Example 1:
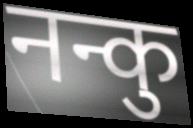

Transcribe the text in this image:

नन्कु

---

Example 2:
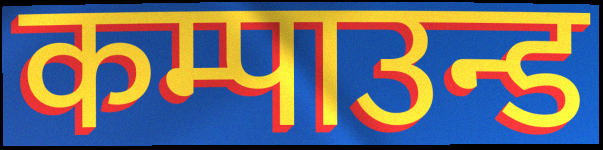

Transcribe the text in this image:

कम्पाउन्ड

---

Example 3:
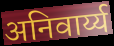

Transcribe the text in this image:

अनिवार्य्य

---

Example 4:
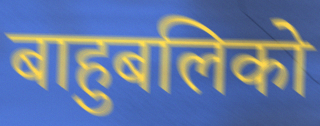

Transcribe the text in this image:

बाहुबलिको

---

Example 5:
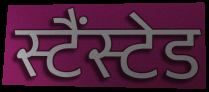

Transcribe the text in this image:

स्टैंस्टेड